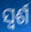
ସ୍ୱର୍ଶ